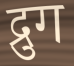
द्रुग